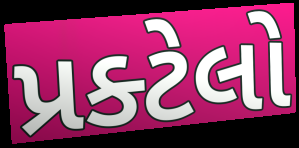
પ્રક્ટેલો